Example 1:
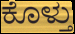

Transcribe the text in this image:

ಕೊಳ್ತು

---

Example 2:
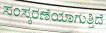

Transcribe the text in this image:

ಸಂಸ್ಕರಣೆಯಾಗುತ್ತಿದೆ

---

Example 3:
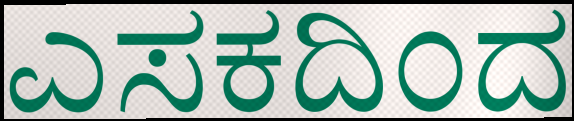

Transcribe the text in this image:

ಎಸಕದಿಂದ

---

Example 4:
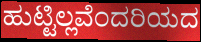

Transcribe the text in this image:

ಹುಟ್ಟಿಲ್ಲವೆಂದರಿಯದ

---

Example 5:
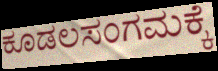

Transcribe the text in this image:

ಕೂಡಲಸಂಗಮಕ್ಕೆ